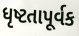
ધૃષ્ટતાપૂર્વક